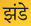
झंडे